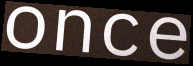
once